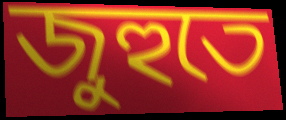
জুহুতে